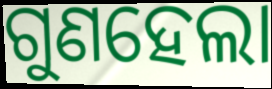
ଗୁଣହେଲା